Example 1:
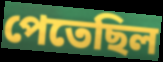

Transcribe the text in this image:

পেতেছিল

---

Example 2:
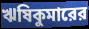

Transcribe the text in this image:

ঋষিকুমারের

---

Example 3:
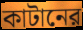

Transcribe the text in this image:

কাটানের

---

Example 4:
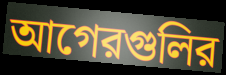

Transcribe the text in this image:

আগেরগুলির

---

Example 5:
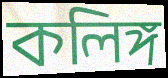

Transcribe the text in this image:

কলিঙ্গ